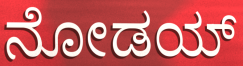
ನೋಡಯ್